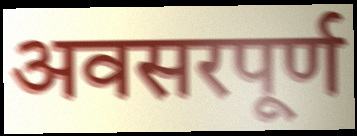
अवसरपूर्ण